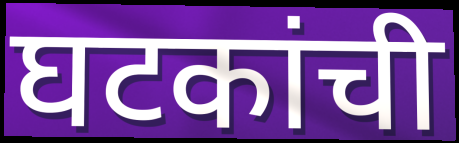
घटकांची